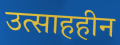
उत्साहहीन